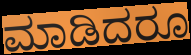
ಮಾಡಿದರೂ